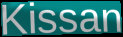
Kissan